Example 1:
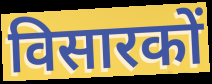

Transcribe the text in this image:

विसारकों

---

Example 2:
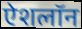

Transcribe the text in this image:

ऐशलॉन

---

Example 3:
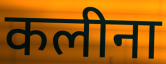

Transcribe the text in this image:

कलीना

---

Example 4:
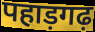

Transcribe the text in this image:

पहाड़गढ़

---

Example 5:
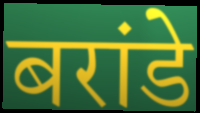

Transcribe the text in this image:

बरांडे